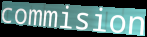
commision